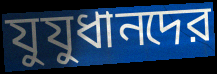
যুযুধানদের